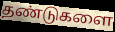
தண்டுகளை